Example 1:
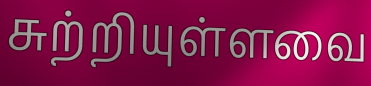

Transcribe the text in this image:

சுற்றியுள்ளவை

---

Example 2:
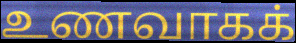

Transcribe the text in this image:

உணவாகக்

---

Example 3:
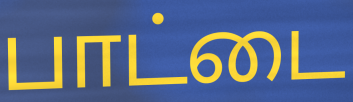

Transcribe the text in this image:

பாட்டை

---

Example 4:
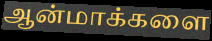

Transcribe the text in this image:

ஆன்மாக்களை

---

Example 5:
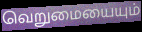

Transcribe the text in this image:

வெறுமையையும்